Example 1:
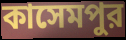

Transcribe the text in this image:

কাসেমপুর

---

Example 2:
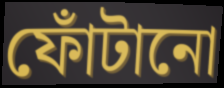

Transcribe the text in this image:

ফোঁটানো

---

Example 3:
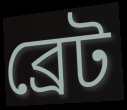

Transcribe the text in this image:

ব্রেট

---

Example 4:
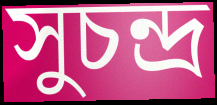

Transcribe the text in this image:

সুচন্দ্র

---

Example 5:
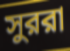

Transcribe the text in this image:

সুররা